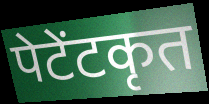
पेटेंटकृत